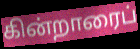
கின்றாரைப்